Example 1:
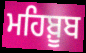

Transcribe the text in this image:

ਮਹਿਬ਼ੂਬ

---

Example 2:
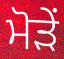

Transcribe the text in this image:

ਮੋੜੇਂ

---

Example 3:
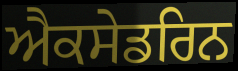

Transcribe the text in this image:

ਐਕਸੇਡਰਿਨ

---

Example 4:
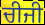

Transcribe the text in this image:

ਚੀਜੀ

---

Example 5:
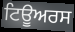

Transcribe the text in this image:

ਟਿਊਅਰਸ